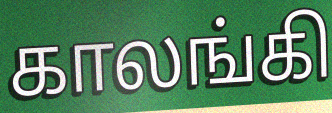
காலங்கி